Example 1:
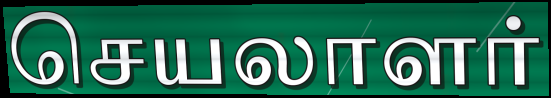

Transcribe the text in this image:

செயலாளர்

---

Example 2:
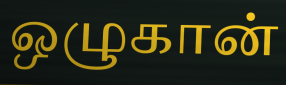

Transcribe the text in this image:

ஒழுகான்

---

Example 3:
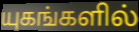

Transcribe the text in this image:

யுகங்களில்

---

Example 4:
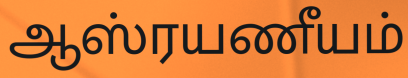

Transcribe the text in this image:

ஆஸ்ரயணீயம்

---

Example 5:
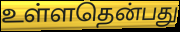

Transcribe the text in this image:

உள்ளதென்பது